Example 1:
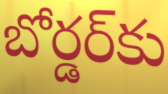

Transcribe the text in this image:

బోర్డర్‌కు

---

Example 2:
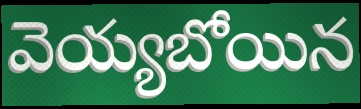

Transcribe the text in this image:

వెయ్యబోయిన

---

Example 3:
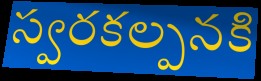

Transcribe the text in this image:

స్వరకల్పనకి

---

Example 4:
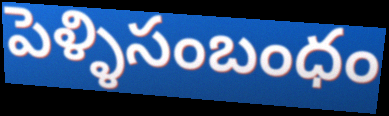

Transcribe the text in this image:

పెళ్ళిసంబంధం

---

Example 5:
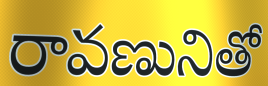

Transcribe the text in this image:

రావణునితో